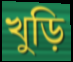
খুড়ি